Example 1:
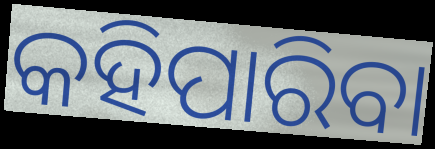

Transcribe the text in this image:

କହିପାରିବା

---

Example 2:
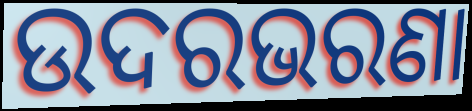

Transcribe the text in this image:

ଉଦରଭରଣା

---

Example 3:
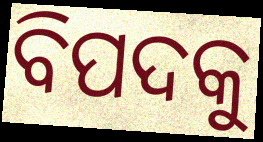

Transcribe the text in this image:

ବିପଦକୁ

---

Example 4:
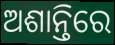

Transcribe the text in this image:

ଅଶାନ୍ତିରେ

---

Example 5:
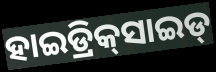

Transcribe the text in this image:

ହାଇଡ୍ରିକ୍‌ସାଇଡ୍